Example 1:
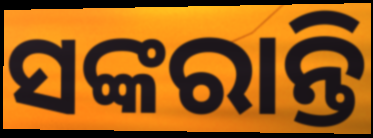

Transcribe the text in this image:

ସଙ୍କରାନ୍ତି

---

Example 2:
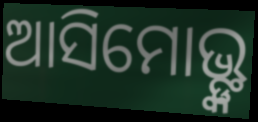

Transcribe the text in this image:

ଆସିମୋଭ୍ଙ୍କ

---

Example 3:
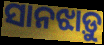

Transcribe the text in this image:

ସାନଝାଡ଼ୁ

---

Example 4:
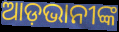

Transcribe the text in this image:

ଆଡ଼ଭାନୀଙ୍କ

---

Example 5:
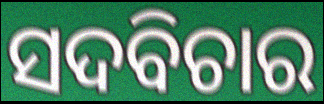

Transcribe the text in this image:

ସଦବିଚାର